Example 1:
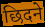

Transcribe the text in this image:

छिदने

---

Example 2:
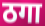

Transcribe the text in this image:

ठगा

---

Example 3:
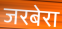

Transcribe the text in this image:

जरबेरा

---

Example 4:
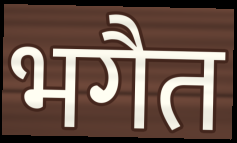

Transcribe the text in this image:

भगैत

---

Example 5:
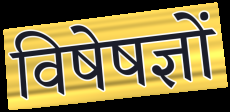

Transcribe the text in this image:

विषेषज्ञों